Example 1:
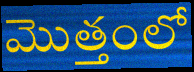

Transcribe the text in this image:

మొత్తంలో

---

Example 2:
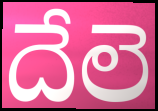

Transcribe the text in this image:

దేలె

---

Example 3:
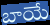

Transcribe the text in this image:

బాయే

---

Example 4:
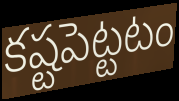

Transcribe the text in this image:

కష్టపెట్టటం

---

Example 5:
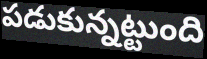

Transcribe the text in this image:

పడుకున్నట్టుంది